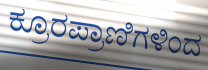
ಕ್ರೂರಪ್ರಾಣಿಗಳಿಂದ